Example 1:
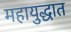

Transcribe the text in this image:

महायुद्धात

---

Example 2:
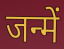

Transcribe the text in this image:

जन्में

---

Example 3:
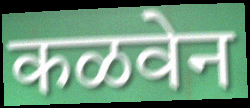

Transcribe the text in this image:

कळवेन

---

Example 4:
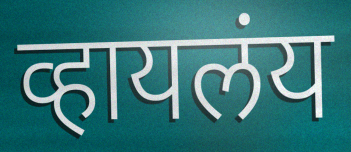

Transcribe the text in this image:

व्हायलंय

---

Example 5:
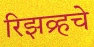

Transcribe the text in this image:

रिझव्र्हचे